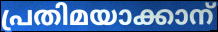
പ്രതിമയാക്കാന്